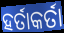
ହର୍ତାକର୍ତା